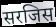
सरजिस